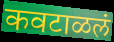
कवटाळलं